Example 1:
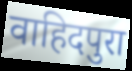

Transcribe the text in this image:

वाहिदपुरा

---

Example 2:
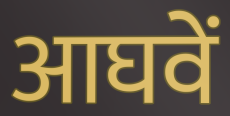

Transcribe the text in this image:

आघवें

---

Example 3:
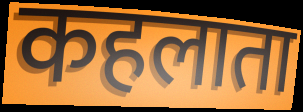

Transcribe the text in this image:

कहलाता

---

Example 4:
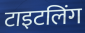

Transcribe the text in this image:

टाइटलिंग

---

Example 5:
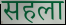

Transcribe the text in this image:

सहला